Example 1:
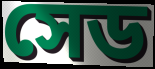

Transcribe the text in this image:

সেড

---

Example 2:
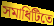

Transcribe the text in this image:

সমাধিটিতে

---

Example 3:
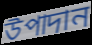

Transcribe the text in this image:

উপাদান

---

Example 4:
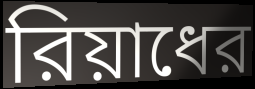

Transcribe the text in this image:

রিয়াধের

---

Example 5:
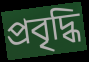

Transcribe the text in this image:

প্রবৃদ্ধি